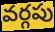
వర్గపు